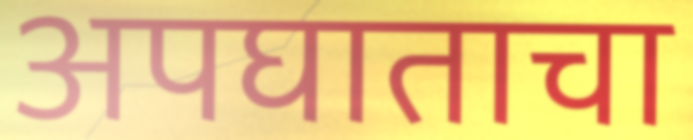
अपघाताचा